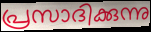
പ്രസാദിക്കുന്നു